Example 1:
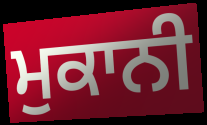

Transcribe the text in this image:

ਮੁਕਾਨੀ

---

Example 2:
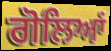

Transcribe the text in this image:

ਗੋਲਿਆਂ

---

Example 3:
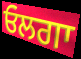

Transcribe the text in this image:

ਓਲਗਾ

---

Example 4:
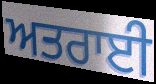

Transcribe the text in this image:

ਅਤਰਾਈ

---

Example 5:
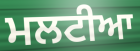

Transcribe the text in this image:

ਮਲਟੀਆ